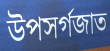
উপসর্গজাত